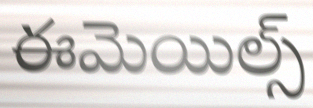
ఈమెయిల్స్